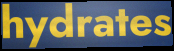
hydrates